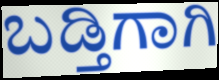
ಬಡ್ತಿಗಾಗಿ